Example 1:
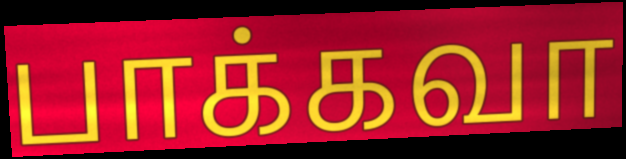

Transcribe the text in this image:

பாக்கவா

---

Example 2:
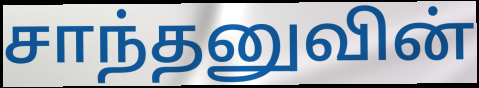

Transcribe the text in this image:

சாந்தனுவின்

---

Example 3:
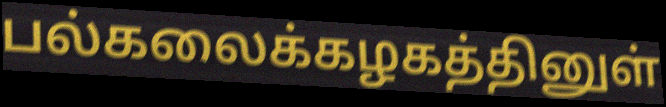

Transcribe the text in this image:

பல்கலைக்கழகத்தினுள்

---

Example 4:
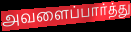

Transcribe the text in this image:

அவளைப்பார்த்து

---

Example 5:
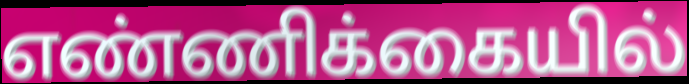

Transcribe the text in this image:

எண்ணிக்கையில்